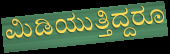
ಮಿಡಿಯುತ್ತಿದ್ದರೂ